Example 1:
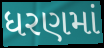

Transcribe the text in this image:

ધરણમાં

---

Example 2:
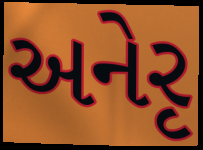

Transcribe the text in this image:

અનેરૃ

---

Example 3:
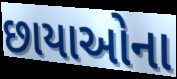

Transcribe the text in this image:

છાયાઓના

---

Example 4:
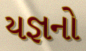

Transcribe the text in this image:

યજ્ઞનો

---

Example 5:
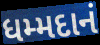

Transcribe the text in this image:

ધમ્મદાનં